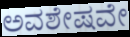
ಅವಶೇಷವೇ